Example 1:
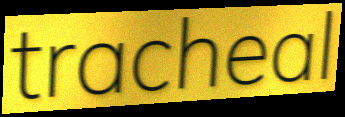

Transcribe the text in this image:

tracheal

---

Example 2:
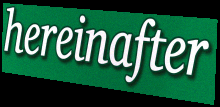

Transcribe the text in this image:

hereinafter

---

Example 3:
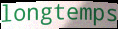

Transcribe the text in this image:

longtemps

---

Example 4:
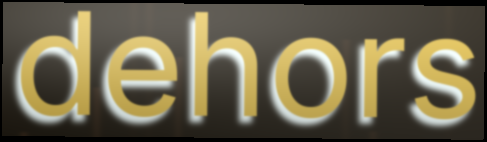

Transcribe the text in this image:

dehors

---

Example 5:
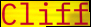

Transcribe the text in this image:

Cliff